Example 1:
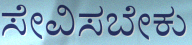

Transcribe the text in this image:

ಸೇವಿಸಬೇಕು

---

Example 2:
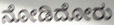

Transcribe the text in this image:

ನೋಡಿದೋರು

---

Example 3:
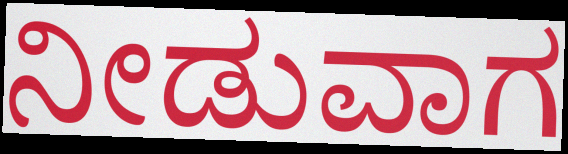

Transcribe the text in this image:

ನೀಡುವಾಗ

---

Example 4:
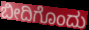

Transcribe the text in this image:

ಬೀದಿಗೊಂದು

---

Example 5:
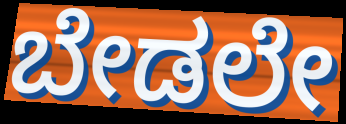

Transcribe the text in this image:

ಬೇಡಲೇ